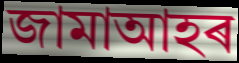
জামাআহৰ